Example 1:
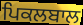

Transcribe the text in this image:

ਪਿਕਲਬਾਲ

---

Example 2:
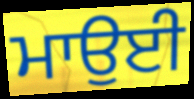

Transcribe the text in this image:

ਮਾਉਈ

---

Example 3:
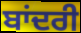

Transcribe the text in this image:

ਬਾਂਦਰੀ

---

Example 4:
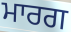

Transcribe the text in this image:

ਮਾਰਗ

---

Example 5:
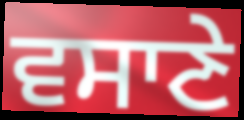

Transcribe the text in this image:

ਵਸਾਣੇ